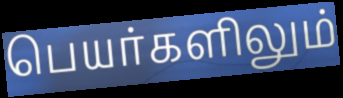
பெயர்களிலும்